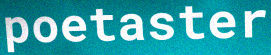
poetaster